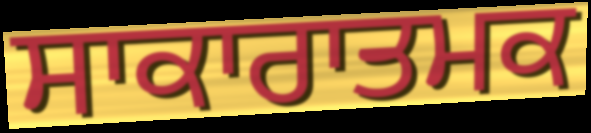
ਸਾਕਾਰਾਤਮਕ